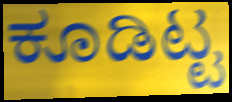
ಕೂಡಿಟ್ಟ